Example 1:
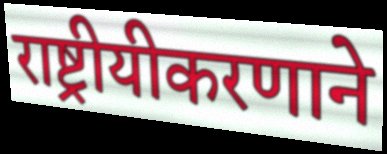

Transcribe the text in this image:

राष्ट्रीयीकरणाने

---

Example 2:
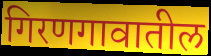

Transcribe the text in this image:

गिरणगावातील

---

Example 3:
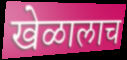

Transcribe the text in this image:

खेळालाच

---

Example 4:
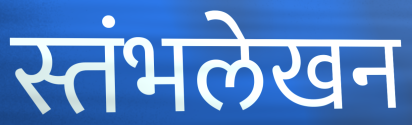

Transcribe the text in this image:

स्तंभलेखन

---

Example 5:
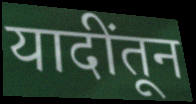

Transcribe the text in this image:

यादींतून